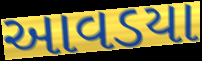
આવડયા